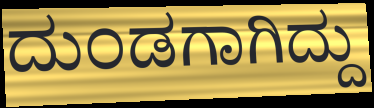
ದುಂಡಗಾಗಿದ್ದು